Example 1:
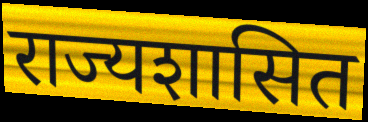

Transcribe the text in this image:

राज्यशासित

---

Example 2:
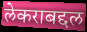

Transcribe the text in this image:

लेकराबद्दल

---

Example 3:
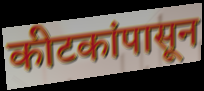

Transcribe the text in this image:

कीटकांपासून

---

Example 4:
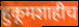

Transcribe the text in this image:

हुकूमशाहीच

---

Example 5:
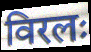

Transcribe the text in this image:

विरलः